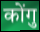
कोंगु